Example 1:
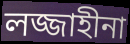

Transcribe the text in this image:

লজ্জাহীনা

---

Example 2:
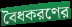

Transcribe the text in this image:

বৈধকরণের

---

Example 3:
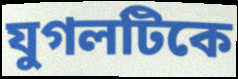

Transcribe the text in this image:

যুগলটিকে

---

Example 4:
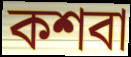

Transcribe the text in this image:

কশবা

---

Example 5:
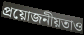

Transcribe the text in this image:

প্রয়োজনীয়তাও